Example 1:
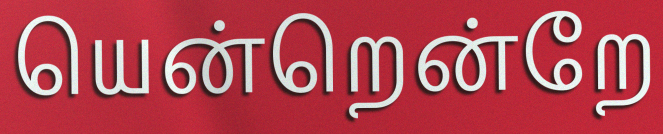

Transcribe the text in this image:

யென்றென்றே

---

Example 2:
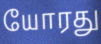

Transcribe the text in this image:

யோரது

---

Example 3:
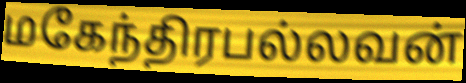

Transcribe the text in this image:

மகேந்திரபல்லவன்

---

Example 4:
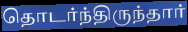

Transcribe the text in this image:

தொடர்ந்திருந்தார்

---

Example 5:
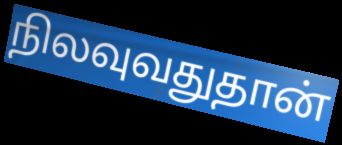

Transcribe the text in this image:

நிலவுவதுதான்